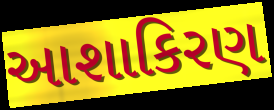
આશાકિરણ